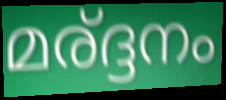
മര്ദ്ദനം